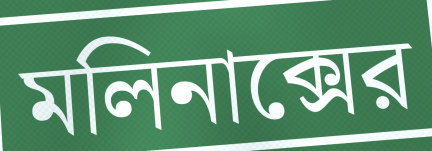
মলিনাক্সের